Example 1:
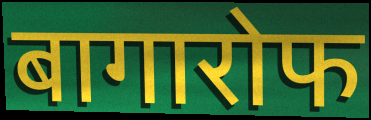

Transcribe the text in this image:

बागारोफ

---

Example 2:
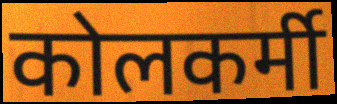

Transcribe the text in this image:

कोलकर्मी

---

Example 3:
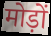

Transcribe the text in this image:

मोड़ों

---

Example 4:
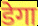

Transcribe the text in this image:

डेगा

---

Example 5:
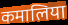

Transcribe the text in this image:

कमालिया